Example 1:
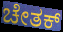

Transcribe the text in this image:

ಚೇತಕ್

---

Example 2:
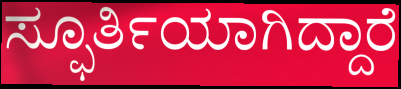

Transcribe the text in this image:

ಸ್ಫೂರ್ತಿಯಾಗಿದ್ದಾರೆ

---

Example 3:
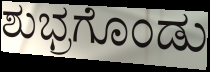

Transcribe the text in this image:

ಶುಭ್ರಗೊಂಡು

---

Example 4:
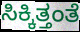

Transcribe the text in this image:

ಸಿಕ್ಕಿತ್ತಂತೆ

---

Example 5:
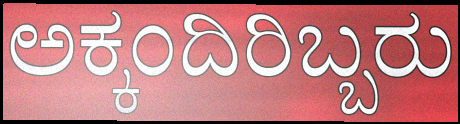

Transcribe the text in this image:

ಅಕ್ಕಂದಿರಿಬ್ಬರು